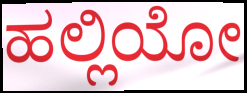
ಹಲ್ಲಿಯೋ